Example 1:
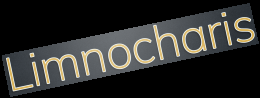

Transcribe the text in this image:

Limnocharis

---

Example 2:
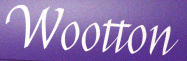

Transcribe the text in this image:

Wootton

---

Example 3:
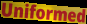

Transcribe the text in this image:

Uniformed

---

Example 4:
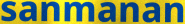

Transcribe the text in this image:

sanmanan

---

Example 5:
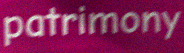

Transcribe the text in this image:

patrimony